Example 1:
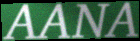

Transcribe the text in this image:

AANA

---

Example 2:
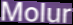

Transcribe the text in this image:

Molur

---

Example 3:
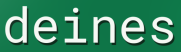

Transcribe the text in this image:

deines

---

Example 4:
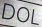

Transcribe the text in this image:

DOL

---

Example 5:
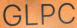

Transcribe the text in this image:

GLPC